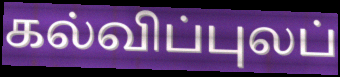
கல்விப்புலப்